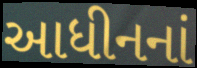
આધીનનાં